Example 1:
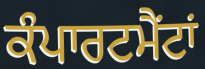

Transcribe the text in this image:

ਕੰਪਾਰਟਮੈਂਟਾਂ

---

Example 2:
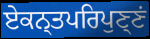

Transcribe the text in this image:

ਏਕਨ੍ਤਪਰਿਪੁਣ੍ਣਂ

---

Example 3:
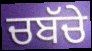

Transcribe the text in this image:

ਚਬੱਚੇ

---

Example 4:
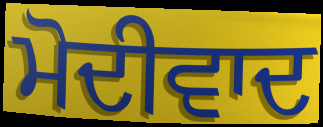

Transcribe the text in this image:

ਮੋਦੀਵਾਦ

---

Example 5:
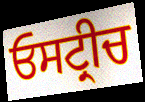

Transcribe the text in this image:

ਓਸਟ੍ਰੀਚ